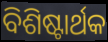
ବିଶିଷ୍ଟାର୍ଥକ